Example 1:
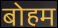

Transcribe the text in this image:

बोहम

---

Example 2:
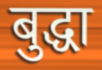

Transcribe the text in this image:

बुद्धा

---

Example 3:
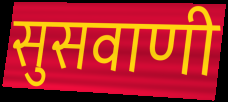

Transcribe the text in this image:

सुसवाणी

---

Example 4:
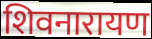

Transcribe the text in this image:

शिवनारायण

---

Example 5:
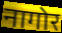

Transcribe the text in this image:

नागोर